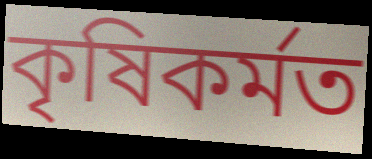
কৃষিকৰ্মত